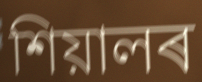
শিয়ালৰ